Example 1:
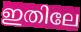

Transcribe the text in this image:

ഇതിലേ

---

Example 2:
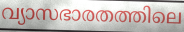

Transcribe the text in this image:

വ്യാസഭാരതത്തിലെ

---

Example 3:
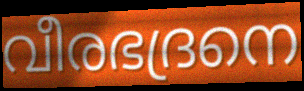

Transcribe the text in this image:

വീരഭദ്രനെ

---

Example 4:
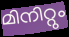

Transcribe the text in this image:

മിനിറ്റും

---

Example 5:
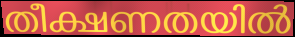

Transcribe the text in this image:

തീക്ഷണതയിൽ